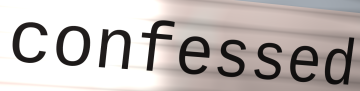
confessed